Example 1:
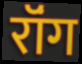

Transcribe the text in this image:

रॉंग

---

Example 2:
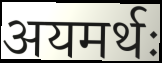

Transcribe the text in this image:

अयमर्थः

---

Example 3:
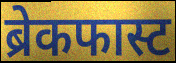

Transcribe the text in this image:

ब्रेकफास्ट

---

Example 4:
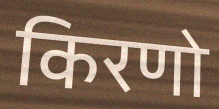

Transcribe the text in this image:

किरणो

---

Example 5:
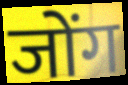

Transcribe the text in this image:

जोंग